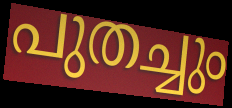
പുതച്ചും